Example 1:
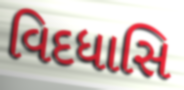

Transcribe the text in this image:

વિદધાસિ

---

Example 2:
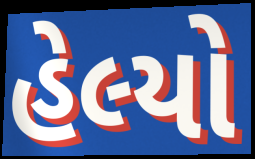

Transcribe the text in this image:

હેલ્યો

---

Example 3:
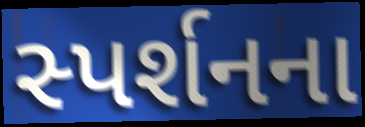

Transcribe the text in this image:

સ્પર્શનના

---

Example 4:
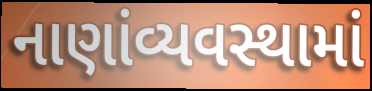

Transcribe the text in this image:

નાણાંવ્યવસ્થામાં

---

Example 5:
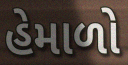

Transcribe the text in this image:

હેમાળો